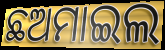
ଛଅମାଇଲ